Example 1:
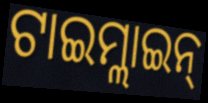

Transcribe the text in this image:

ଟାଇମ୍ଲାଇନ୍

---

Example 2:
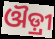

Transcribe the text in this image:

ଔଡ଼୍ରୀ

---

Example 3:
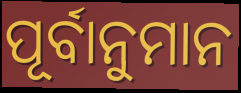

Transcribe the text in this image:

ପୂର୍ବାନୁମାନ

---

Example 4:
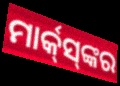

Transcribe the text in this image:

ମାର୍କ୍‌ସ୍‌ଙ୍କର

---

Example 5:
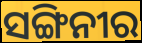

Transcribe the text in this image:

ସଙ୍ଗିନୀର